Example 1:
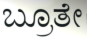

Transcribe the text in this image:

ಬ್ರೂತೇ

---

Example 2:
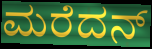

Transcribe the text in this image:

ಮರೆದನ್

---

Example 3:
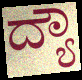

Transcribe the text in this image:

ದ್ಯೌ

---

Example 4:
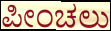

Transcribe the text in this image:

ಪೀಂಚಲು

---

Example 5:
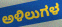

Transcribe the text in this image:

ಅಳಿಲುಗಳ